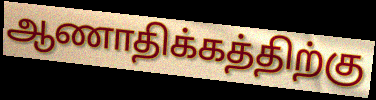
ஆணாதிக்கத்திற்கு